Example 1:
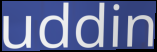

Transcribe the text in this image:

uddin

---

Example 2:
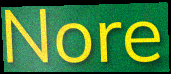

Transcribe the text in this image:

Nore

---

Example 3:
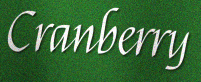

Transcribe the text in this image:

Cranberry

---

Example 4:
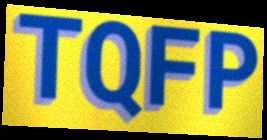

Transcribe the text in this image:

TQFP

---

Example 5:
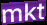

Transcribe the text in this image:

mkt